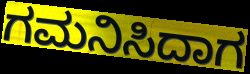
ಗಮನಿಸಿದಾಗ